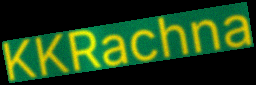
KKRachna